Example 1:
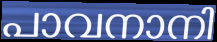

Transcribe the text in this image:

പാവനാനി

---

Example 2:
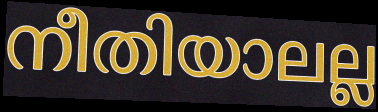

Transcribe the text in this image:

നീതിയാലല്ല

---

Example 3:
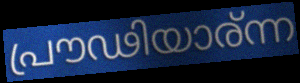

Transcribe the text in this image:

പ്രൗഢിയാര്ന്ന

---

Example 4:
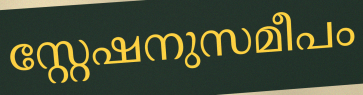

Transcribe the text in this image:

സ്റ്റേഷനുസമീപം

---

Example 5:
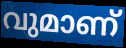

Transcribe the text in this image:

വുമാണ്